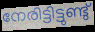
നേരിട്ടിട്ടുണ്ടു്